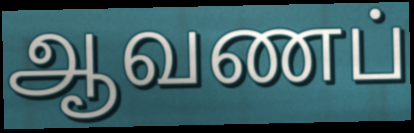
ஆவணப்